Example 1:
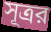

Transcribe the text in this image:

সূত্রর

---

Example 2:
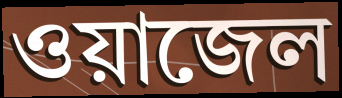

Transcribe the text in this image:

ওয়াজেল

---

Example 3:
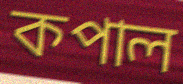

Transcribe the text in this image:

কপাল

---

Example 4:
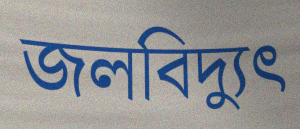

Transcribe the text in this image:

জলবিদ্যুৎ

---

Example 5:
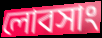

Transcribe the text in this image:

লোবসাং